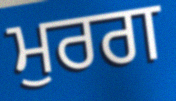
ਮੁਰਗ